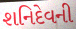
શનિદેવની